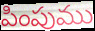
పింపుము